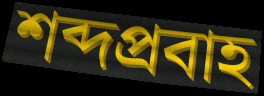
শব্দপ্রবাহ